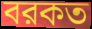
বরকত